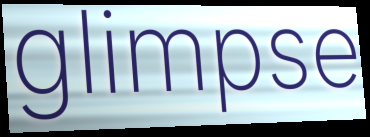
glimpse